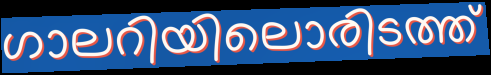
ഗാലറിയിലൊരിടത്ത്